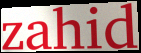
zahid